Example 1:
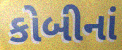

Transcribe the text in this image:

કોબીનાં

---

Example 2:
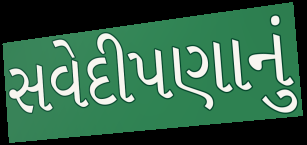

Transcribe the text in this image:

સવેદીપણાનું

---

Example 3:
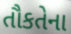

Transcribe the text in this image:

તૌકતેના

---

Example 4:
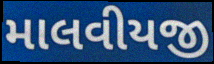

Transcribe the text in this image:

માલવીયજી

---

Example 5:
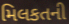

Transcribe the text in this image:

મિલકતની